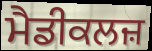
ਮੈਡੀਕਲਜ਼